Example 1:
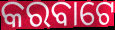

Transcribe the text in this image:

କରବାଟେ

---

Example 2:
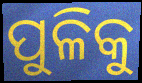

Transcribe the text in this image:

ପୁଳିକୁ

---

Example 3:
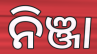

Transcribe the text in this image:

ନିଞ୍ଜା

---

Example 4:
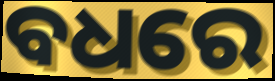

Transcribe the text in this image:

ବଧରେ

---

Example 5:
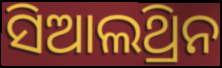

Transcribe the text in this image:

ସିଆଲଥ୍ରିନ